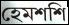
হেমশশি